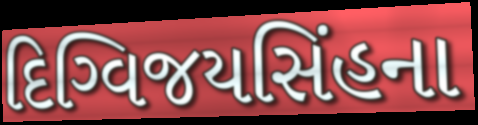
દિગ્વિજયસિંહના